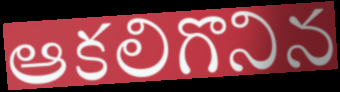
ఆకలిగొనిన